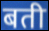
बती